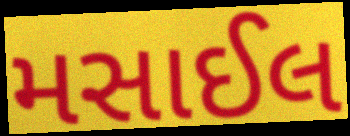
મસાઈલ